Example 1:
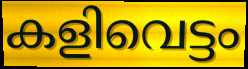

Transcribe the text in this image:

കളിവെട്ടം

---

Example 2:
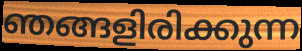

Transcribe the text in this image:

ഞങ്ങളിരിക്കുന്ന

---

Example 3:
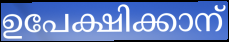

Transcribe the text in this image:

ഉപേക്ഷിക്കാന്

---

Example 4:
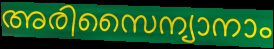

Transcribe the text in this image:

അരിസൈന്യാനാം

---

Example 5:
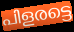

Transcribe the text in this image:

പിളരട്ടെ